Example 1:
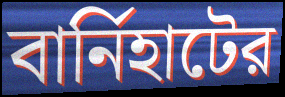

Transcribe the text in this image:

বার্নিহাটের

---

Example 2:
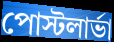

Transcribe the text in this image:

পোস্টলার্ভা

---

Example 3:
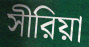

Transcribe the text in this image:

সীরিয়া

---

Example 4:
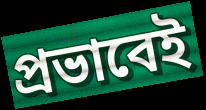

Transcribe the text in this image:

প্রভাবেই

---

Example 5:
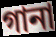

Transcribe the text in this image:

গানা